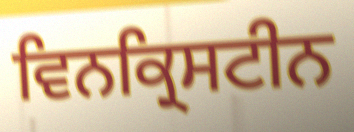
ਵਿਨਕ੍ਰਿਸਟੀਨ